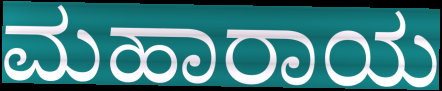
ಮಹಾರಾಯ